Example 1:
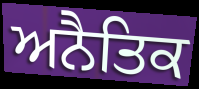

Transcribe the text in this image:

ਅਨੈਤਿਕ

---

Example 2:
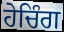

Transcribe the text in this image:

ਹੇਚਿੰਗ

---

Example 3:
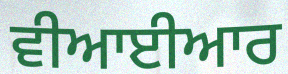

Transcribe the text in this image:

ਵੀਆਈਆਰ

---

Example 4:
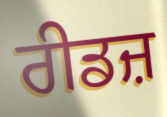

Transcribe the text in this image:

ਰੀਡਜ਼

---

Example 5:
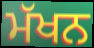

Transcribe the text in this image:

ਮੱਖਨ